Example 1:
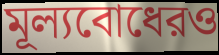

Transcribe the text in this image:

মূল্যবোধেরও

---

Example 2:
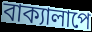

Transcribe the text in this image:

বাক্যালাপে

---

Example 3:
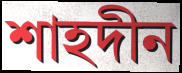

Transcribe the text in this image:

শাহদীন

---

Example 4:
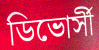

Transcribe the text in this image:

ডিভোর্সী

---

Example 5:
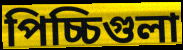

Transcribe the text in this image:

পিচ্চিগুলা